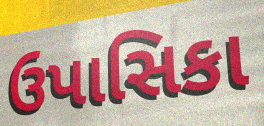
ઉપાસિકા